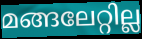
മങ്ങലേറ്റില്ല